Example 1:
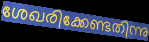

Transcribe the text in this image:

ശേഖരിക്കേണ്ടതിന്നു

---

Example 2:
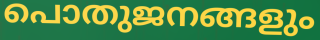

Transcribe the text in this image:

പൊതുജനങ്ങളും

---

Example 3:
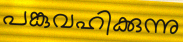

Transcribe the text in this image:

പങ്കുവഹിക്കുന്നു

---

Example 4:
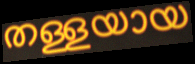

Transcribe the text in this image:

തള്ളയായ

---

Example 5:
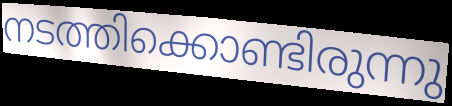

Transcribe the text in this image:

നടത്തിക്കൊണ്ടിരുന്നു